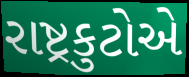
રાષ્ટ્રકુટોએ